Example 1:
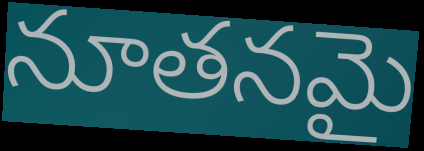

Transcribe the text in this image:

నూతనమై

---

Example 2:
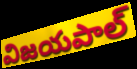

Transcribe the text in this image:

విజయపాల్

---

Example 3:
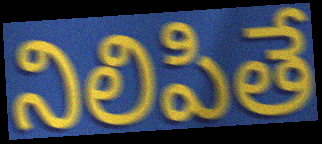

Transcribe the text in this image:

నిలిపితే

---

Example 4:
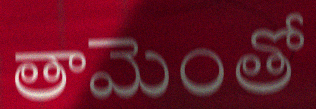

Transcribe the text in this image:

తామెంతో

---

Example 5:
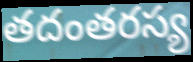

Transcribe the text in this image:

తదంతరస్య